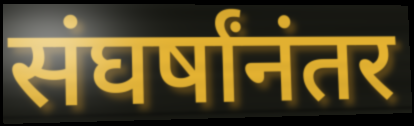
संघर्षांनंतर